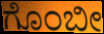
ಗೊಂಬೀ